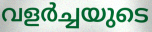
വളർച്ചയുടെ